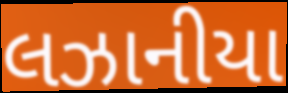
લઝાનીયા